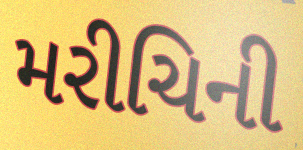
મરીચિની